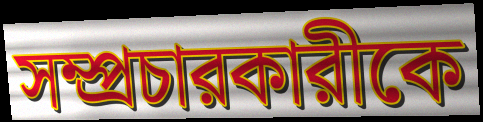
সম্প্রচারকারীকে